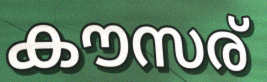
കൗസര്